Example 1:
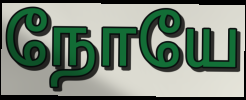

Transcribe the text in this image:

நோயே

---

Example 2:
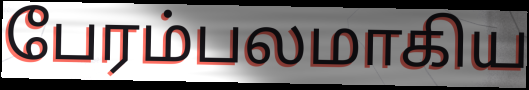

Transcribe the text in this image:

பேரம்பலமாகிய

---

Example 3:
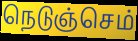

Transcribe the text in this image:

நெடுஞ்செம்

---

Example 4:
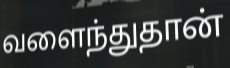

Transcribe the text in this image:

வளைந்துதான்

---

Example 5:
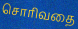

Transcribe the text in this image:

சொரிவதை